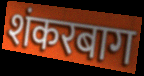
शंकरबाग